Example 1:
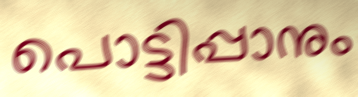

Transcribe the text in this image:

പൊട്ടിപ്പാനും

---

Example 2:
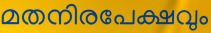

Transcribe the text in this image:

മതനിരപേക്ഷവും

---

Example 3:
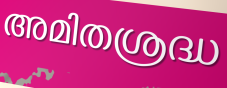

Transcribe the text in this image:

അമിതശ്രദ്ധ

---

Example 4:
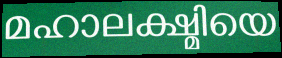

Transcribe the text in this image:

മഹാലക്ഷ്മിയെ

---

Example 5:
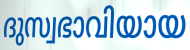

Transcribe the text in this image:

ദുസ്വഭാവിയായ